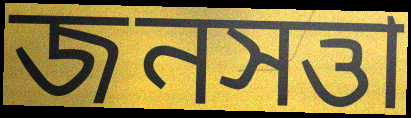
জনসত্তা